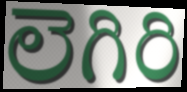
లెగిరి